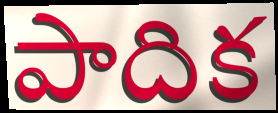
పాదిక